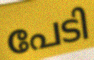
പേടി